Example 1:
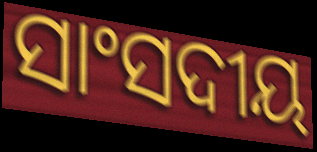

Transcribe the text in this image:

ସାଂସଦୀୟ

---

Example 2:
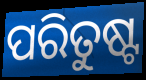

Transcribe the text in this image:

ପରିତୁଷ୍ଟ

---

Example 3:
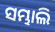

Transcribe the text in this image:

ସମ୍ଭାଲି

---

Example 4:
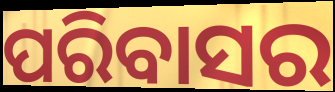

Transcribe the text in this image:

ପରିବାସର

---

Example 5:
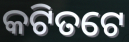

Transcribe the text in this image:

କଟିତଟେ